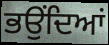
ਭਉਂਦਿਆਂ